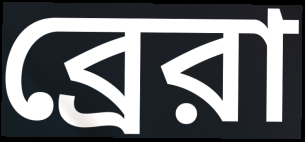
ব্রেরা